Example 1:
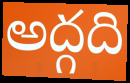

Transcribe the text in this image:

అద్గది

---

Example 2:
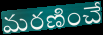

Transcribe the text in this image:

మరణించే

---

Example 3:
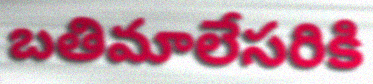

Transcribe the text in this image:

బతిమాలేసరికి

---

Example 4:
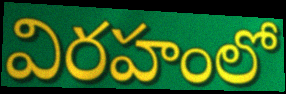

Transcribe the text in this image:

విరహంలో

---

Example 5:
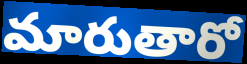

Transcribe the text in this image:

మారుతారో